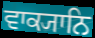
ਵਾਕ੍ਯਾਨਿ